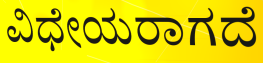
ವಿಧೇಯರಾಗದೆ